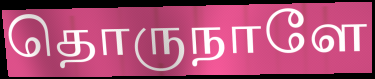
தொருநாளே